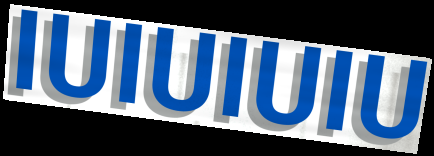
IUIUIUIU